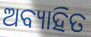
ଅବ୍ୟାହିତ